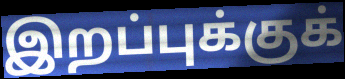
இறப்புக்குக்